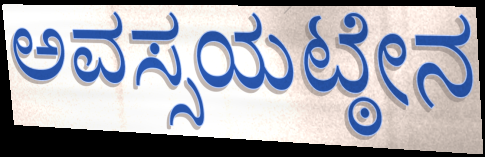
ಅವಸ್ಸಯಟ್ಠೇನ